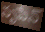
నృపేన్